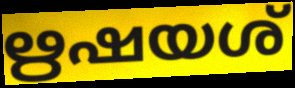
ഋഷയശ്